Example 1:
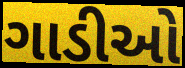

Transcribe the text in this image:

ગાડીઓ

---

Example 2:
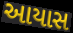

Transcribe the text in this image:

આયાસ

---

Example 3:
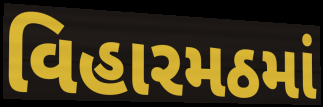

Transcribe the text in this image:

વિહારમઠમાં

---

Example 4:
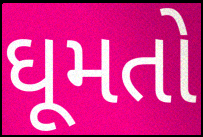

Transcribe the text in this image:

ઘૂમતો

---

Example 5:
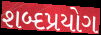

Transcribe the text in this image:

શબ્દપ્રયોગ